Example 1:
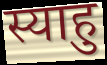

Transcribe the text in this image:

स्याहु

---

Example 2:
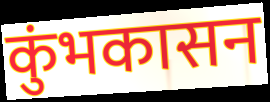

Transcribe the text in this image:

कुंभकासन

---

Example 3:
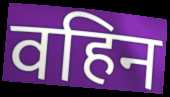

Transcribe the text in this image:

वहिन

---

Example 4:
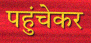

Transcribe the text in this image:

पहुंचेकर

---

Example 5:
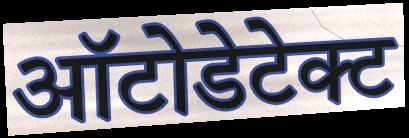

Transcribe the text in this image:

ऑटोडेटेक्ट